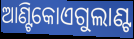
ଆଣ୍ଟିକୋଏଗୁଲାଣ୍ଟ